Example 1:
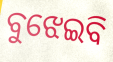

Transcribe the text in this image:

ବୁଝେଇବି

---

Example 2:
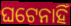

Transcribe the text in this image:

ଘଟେନାହିଁ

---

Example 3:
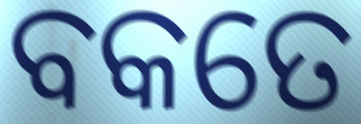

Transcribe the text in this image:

ବକତେ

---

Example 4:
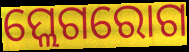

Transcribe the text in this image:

ପ୍ଲେଗରୋଗ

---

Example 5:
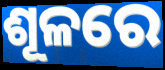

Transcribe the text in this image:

ଶୂଳରେ